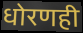
धोरणही